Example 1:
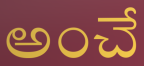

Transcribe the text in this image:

అంచే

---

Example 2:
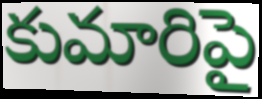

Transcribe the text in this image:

కుమారిపై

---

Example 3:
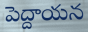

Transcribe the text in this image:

పెద్దాయన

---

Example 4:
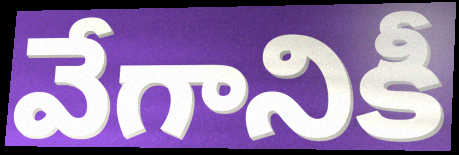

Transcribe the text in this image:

వేగానికీ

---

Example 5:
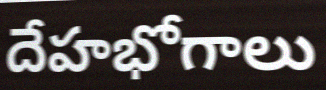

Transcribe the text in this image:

దేహభోగాలు